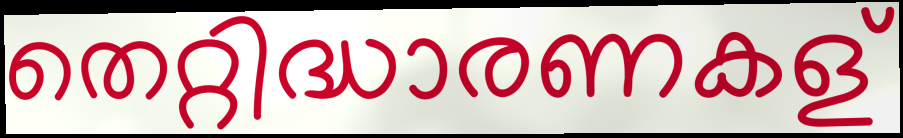
തെറ്റിദ്ധാരണകള്